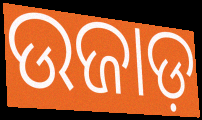
ଉଜାଡ଼